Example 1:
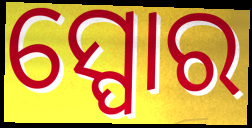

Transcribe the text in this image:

ସ୍ପୋର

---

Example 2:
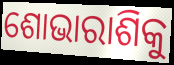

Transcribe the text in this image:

ଶୋଭାରାଶିକୁ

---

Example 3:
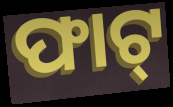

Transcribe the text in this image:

ଫାଟ୍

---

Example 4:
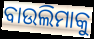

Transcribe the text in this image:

ବାଉଲିମାକୁ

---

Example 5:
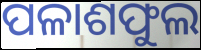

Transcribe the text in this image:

ପଳାଶଫୁଲ